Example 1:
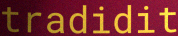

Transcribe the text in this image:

tradidit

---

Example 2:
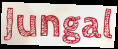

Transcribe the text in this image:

Jungal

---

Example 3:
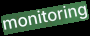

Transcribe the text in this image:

monitoring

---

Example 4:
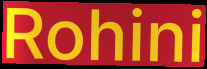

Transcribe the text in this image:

Rohini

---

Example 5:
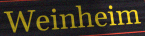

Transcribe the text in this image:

Weinheim